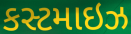
કસ્ટમાઇઝ